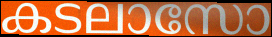
കടലാസോ